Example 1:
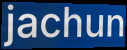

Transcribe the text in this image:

jachun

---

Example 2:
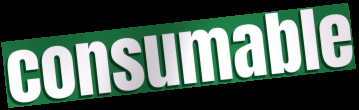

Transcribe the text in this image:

consumable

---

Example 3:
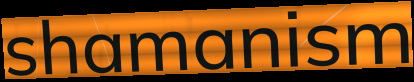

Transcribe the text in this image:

shamanism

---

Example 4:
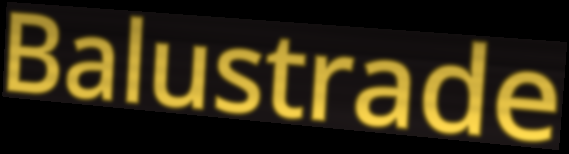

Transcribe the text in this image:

Balustrade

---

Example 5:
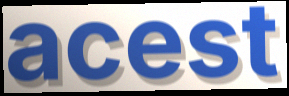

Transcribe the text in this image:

acest